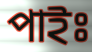
পাইঃ